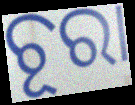
ଚୂରା